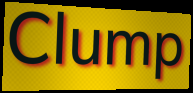
Clump